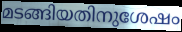
മടങ്ങിയതിനുശേഷം